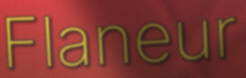
Flaneur